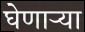
घेणाऱ्या